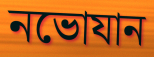
নভোযান